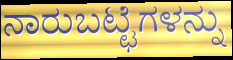
ನಾರುಬಟ್ಟೆಗಳನ್ನು